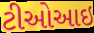
ટીઓઆઇ